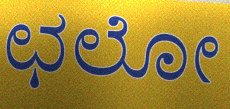
ಛಲೋ